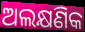
ଅଲକ୍ଷଣିକ